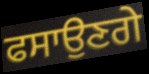
ਫਸਾਉਣਗੇ